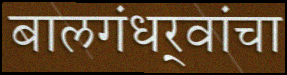
बालगंधर्वांचा